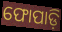
ଫୋପାଡ଼ି